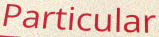
Particular